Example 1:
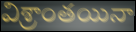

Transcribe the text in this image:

విశ్రాంతయినా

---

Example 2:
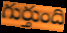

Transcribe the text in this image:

గుర్తుంది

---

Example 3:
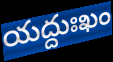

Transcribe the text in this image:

యద్దుఃఖం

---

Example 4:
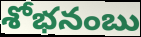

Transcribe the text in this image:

శోభనంబు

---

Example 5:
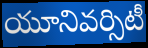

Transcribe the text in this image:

యూనివర్సిటీ